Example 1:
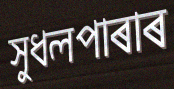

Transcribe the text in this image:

সুধলপাৰাৰ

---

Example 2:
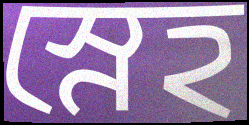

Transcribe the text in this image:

স্নেহ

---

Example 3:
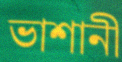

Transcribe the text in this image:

ভাশানী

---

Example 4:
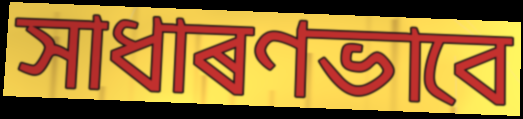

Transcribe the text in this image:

সাধাৰণভাবে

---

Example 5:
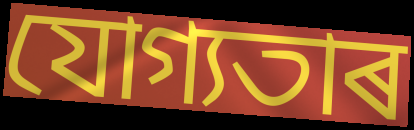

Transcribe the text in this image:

যোগ্যতাৰ